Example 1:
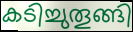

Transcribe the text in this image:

കടിച്ചുതൂങ്ങി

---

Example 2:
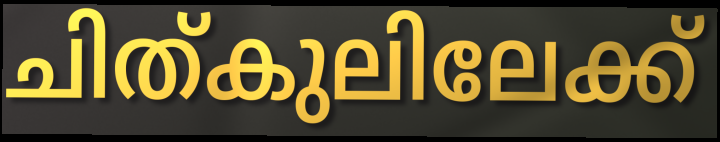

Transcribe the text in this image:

ചിത്കുലിലേക്ക്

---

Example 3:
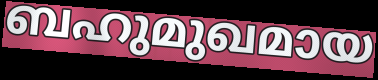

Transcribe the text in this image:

ബഹുമുഖമായ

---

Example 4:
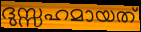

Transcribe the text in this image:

ദുസ്സഹമായത്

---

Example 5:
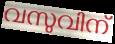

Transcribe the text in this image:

വസുവിന്